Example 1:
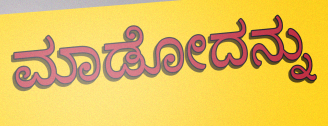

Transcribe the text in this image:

ಮಾಡೋದನ್ನು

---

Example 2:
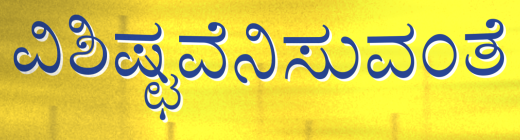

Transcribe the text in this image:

ವಿಶಿಷ್ಟವೆನಿಸುವಂತೆ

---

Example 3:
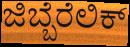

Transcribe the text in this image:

ಜಿಬ್ಬೆರೆಲಿಕ್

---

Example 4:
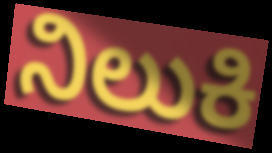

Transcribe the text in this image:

ನಿಲುಕಿ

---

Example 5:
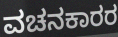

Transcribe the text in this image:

ವಚನಕಾರರ